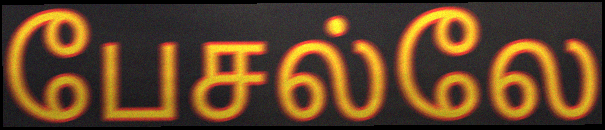
பேசல்லே